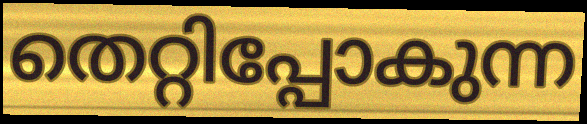
തെറ്റിപ്പോകുന്ന